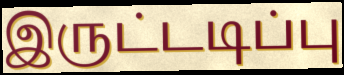
இருட்டடிப்பு